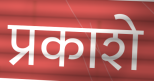
प्रकाशे